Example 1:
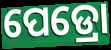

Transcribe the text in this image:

ପେଡ୍ରୋ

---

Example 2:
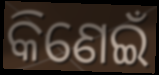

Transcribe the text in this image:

କିଣେଇଁ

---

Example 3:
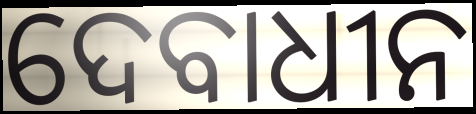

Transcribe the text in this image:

ଦେବାଧୀନ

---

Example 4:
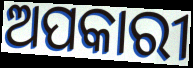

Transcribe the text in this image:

ଅପକାରୀ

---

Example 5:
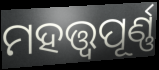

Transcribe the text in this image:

ମହତ୍ତ୍ୱପୂର୍ଣ୍ଣ